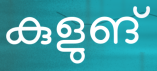
കുളുങ്